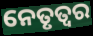
ନେତୃତ୍ୱର